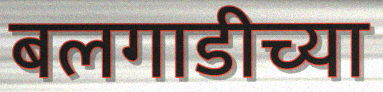
बलगाडीच्या